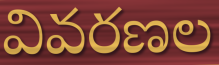
వివరణల